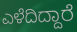
ಎಳೆದಿದ್ದಾರೆ